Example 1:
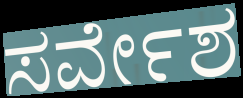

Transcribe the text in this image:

ಸರ್ವೇಶ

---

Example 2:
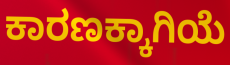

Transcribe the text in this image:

ಕಾರಣಕ್ಕಾಗಿಯೆ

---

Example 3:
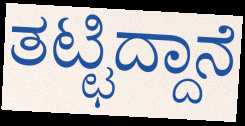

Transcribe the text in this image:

ತಟ್ಟಿದ್ದಾನೆ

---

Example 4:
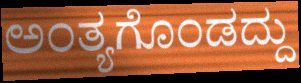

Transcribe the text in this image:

ಅಂತ್ಯಗೊಂಡದ್ದು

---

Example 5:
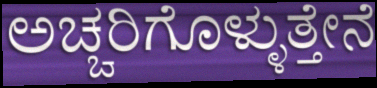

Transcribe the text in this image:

ಅಚ್ಚರಿಗೊಳ್ಳುತ್ತೇನೆ